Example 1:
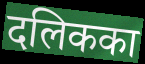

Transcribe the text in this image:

दलिकका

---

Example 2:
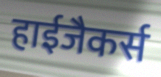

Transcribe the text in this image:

हाईजैकर्स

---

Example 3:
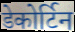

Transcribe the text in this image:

डेकोर्टिन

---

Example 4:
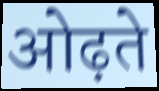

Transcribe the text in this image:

ओढ़ते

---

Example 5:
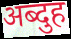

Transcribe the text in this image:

अब्दुह